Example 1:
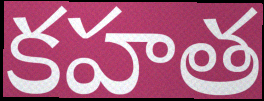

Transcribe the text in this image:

కహత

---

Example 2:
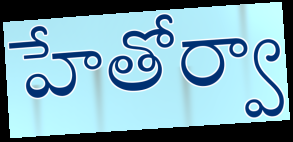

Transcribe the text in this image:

హేతోర్వా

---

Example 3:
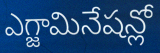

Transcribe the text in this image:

ఎగ్జామినేషన్లో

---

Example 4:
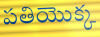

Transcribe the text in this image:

పతియొక్క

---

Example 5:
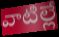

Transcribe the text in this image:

వాటిల్లే